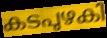
കടപുഴകി